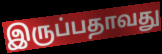
இருப்பதாவது